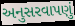
અનુસરવાપણું